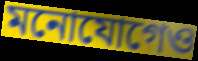
মনোযোগেও